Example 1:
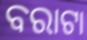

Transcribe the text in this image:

ବରାଟା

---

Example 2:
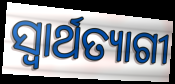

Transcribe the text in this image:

ସ୍ୱାର୍ଥତ୍ୟାଗୀ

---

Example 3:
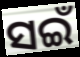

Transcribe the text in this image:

ସଇଁ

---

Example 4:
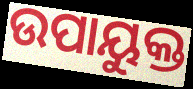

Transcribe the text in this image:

ଉପାୟୁକ୍ତ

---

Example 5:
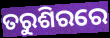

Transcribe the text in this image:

ତରୁଶିରରେ